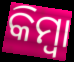
କିମ୍ଵା